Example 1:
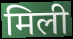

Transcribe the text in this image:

मिली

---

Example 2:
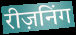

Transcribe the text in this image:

रीज़निंग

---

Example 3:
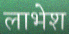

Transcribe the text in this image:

लाभेश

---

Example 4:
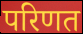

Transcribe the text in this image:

परिणत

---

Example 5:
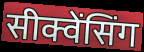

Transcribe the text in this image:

सीक्वेंसिंग